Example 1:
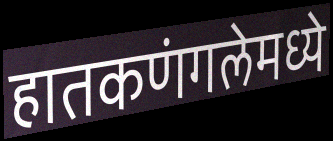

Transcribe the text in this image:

हातकणंगलेमध्ये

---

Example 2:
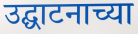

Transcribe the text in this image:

उद्घाटनाच्या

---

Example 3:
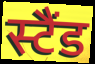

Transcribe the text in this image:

स्टैंड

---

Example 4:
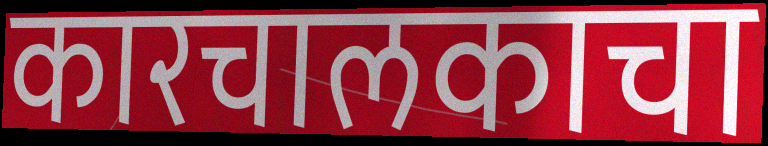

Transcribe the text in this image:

कारचालकाचा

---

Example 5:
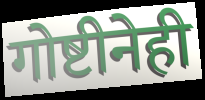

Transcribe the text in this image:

गोष्टीनेही